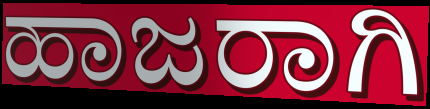
ಹಾಜರಾಗಿ